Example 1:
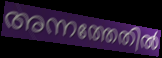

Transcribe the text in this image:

അന്നത്തേതിൽ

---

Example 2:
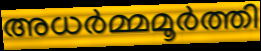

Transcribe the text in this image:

അധർമ്മമൂർത്തി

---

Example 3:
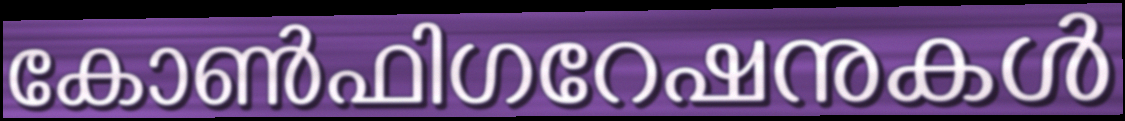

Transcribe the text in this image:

കോൺഫിഗറേഷനുകൾ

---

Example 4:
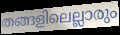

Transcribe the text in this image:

തങ്ങളിലെല്ലാരും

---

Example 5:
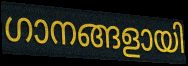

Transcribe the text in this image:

ഗാനങ്ങളായി